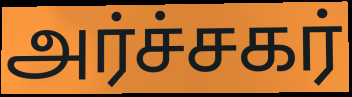
அர்ச்சகர்